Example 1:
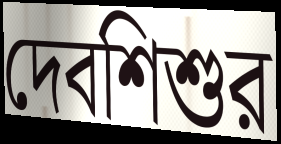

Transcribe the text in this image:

দেবশিশুর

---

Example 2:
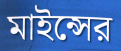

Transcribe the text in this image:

মাইন্সের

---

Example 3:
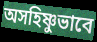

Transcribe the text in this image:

অসহিষ্ণুভাবে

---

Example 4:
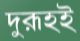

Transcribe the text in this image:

দুরূহই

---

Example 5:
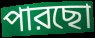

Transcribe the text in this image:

পারছো